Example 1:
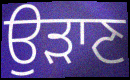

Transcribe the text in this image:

ਉਡ਼ਾਣ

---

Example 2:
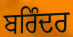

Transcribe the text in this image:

ਬਰਿੰਦਰ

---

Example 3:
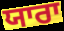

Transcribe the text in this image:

ਯਾਰਾ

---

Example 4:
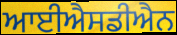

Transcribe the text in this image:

ਆਈਐਸਡੀਐਨ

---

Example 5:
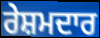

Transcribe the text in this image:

ਰੇਸ਼ਮਦਾਰ